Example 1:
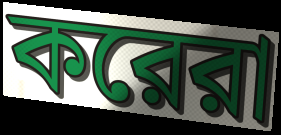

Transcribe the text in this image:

করেরা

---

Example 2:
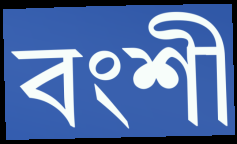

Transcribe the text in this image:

বংশী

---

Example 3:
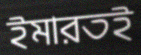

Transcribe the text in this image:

ইমারতই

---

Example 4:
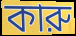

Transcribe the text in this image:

কারু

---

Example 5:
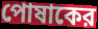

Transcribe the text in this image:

পোষাকের